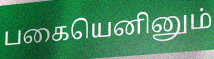
பகையெனினும்